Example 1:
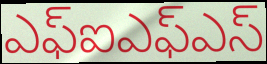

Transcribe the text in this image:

ఎఫ్ఐఎఫ్ఎస్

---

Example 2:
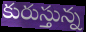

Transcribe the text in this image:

కురుస్తున్న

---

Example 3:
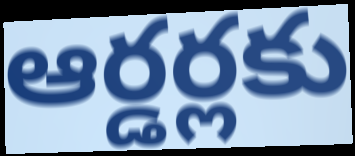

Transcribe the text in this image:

ఆర్డర్లకు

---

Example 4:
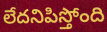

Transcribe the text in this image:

లేదనిపిస్తోంది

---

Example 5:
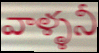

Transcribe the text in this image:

వాళ్ళనీ